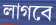
লাগবে